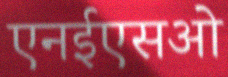
एनईएसओ